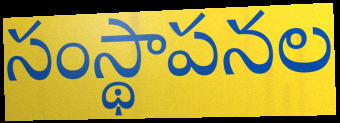
సంస్థాపనల